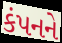
કંપનને